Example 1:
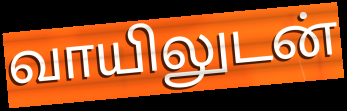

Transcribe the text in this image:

வாயிலுடன்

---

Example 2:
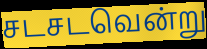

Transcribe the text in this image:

சடசடவென்று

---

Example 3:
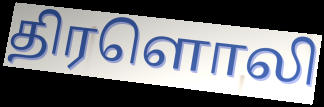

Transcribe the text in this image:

திரளொலி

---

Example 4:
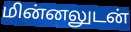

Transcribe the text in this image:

மின்னலுடன்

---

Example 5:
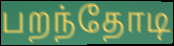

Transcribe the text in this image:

பறந்தோடி